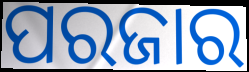
ପରଜାର